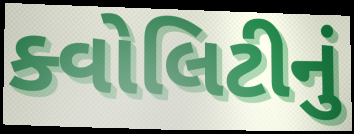
ક્વોલિટીનું